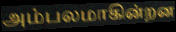
அம்பலமாகின்றன